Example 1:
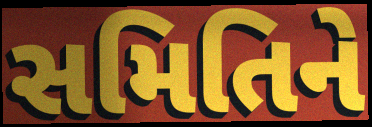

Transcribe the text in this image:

સમિતિને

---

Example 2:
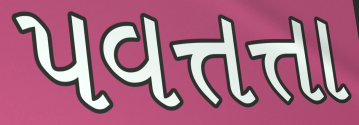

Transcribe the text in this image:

પવત્તત્તા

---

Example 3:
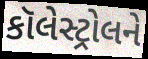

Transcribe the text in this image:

કૉલેસ્ટ્રોલને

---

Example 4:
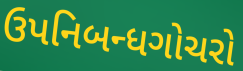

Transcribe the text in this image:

ઉપનિબન્ધગોચરો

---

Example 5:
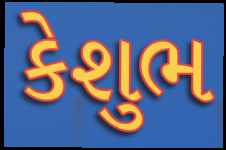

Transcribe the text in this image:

કેશુભ